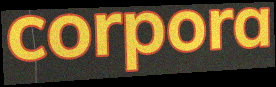
corpora